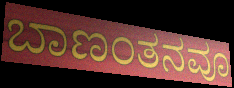
ಬಾಣಂತನವೂ